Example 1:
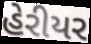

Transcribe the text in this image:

હેરીયર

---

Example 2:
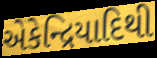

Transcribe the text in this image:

એકેન્દ્રિયાદિથી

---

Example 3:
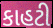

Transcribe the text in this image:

કાહટી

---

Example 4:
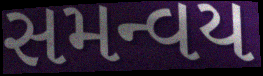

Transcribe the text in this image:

સમન્વય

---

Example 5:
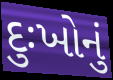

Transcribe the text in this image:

દુઃખોનું